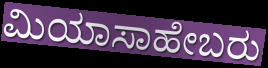
ಮಿಯಾಸಾಹೇಬರು